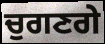
ਚੁਗਣਗੇ